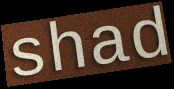
shad